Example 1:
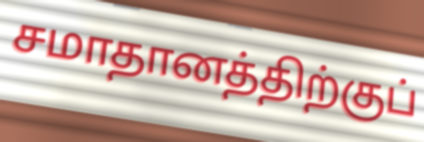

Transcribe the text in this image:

சமாதானத்திற்குப்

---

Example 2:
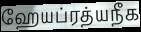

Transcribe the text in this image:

ஹேயப்ரத்யநீக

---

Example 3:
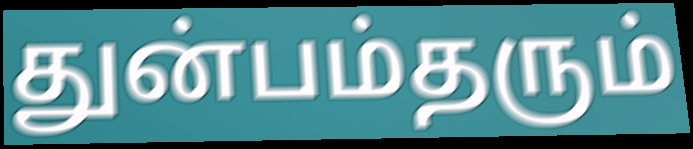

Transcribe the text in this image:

துன்பம்தரும்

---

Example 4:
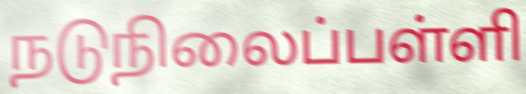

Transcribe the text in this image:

நடுநிலைப்பள்ளி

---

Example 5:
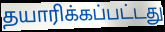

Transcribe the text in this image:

தயாரிக்கப்பட்டது